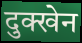
दुक्खेन